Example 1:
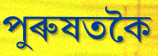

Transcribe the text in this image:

পুৰুষতকৈ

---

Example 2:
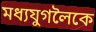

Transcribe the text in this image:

মধ্যযুগলৈকে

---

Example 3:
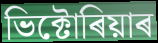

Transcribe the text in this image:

ভিক্টোৰিয়াৰ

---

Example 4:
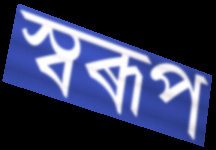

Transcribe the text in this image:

স্বৰূপ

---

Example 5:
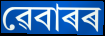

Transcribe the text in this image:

ৱেবাৰৰ